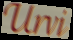
Urvi